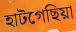
হাটগেছিয়া